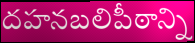
దహనబలిపీఠాన్ని